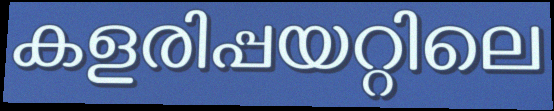
കളരിപ്പയറ്റിലെ